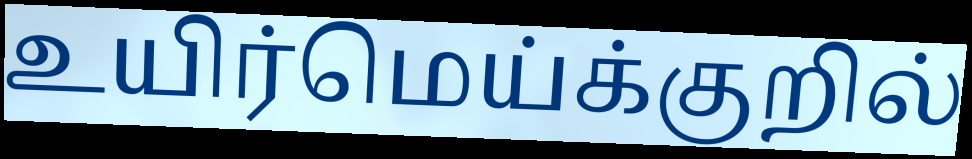
உயிர்மெய்க்குறில்